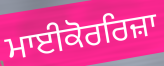
ਮਾਈਕੋਰਰਿਜ਼ਾ